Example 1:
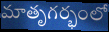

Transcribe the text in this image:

మాతృగర్భంలో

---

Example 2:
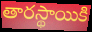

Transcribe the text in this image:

తారస్థాయికి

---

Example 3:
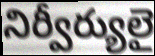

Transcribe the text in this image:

నిర్వీర్యులై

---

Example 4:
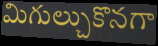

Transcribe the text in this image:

మిగుల్చుకొనగా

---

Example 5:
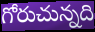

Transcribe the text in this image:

గోరుచున్నది